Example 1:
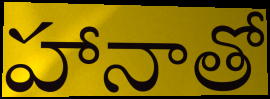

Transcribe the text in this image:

హానాతో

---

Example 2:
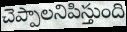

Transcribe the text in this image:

చెప్పాలనిపిస్తుంది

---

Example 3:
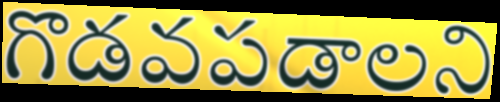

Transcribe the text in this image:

గొడవపడాలని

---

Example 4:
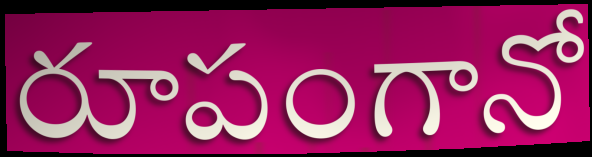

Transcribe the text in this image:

రూపంగానో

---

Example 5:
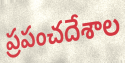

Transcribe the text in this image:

ప్రపంచదేశాల